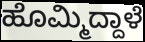
ಹೊಮ್ಮಿದ್ದಾಳೆ